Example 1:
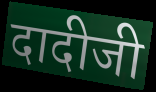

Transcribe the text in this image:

दादीजी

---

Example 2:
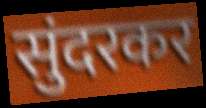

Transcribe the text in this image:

सुंदरकर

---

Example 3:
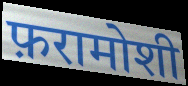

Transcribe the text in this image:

फ़रामोशी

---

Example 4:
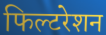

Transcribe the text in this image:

फिल्टरेशन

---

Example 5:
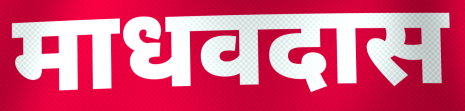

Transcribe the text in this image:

माधवदास